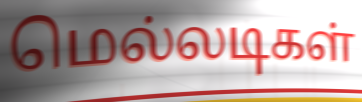
மெல்லடிகள்